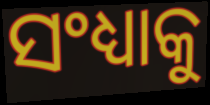
ସଂଧ୍ୟାକୁ